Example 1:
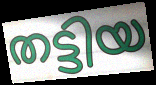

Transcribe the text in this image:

തട്ടിയ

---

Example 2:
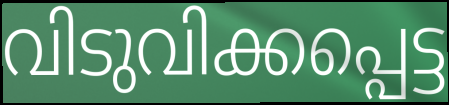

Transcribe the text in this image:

വിടുവിക്കപ്പെട്ട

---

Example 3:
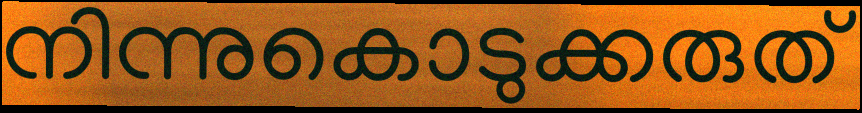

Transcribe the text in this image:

നിന്നുകൊടുക്കരുത്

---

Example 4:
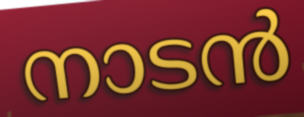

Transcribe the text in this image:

നാടൻ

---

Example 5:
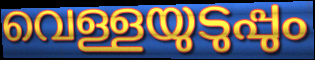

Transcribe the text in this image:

വെള്ളയുടുപ്പും